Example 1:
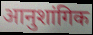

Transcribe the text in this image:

आनुशांगिक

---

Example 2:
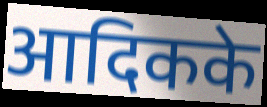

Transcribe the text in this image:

आदिकके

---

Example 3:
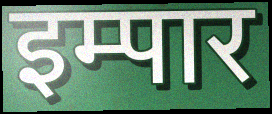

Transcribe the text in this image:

इम्पार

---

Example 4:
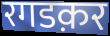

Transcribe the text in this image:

रगडक़र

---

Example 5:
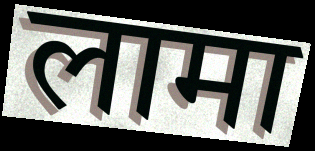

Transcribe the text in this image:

लामा